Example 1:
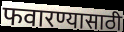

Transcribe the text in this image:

फवारण्यासाठी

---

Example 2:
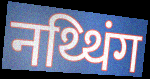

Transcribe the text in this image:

नथ्थिंग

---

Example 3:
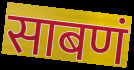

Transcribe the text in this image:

साबणं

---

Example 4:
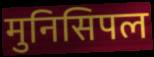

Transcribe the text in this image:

मुनिसिपल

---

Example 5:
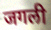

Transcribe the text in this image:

जगली